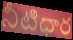
నీటిధార